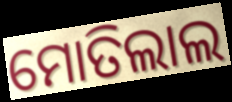
ମୋତିଲାଲ